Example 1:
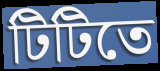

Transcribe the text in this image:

টিটিতে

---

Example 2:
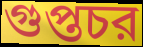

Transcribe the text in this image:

গুপ্তচর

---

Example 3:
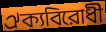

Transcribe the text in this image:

ঐক্যবিরোধী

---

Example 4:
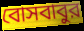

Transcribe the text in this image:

বোসবাবুর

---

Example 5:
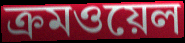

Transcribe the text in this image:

ক্রমওয়েল